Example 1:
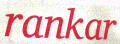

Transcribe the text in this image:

rankar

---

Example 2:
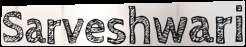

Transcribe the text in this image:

Sarveshwari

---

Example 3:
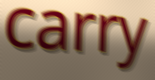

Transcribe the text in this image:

carry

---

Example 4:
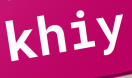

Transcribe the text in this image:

khiy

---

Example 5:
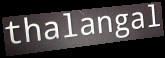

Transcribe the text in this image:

thalangal